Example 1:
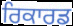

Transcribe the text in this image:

ਰਿਕਾਰਡ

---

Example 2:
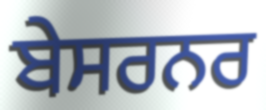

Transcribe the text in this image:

ਬੇਸਰਨਰ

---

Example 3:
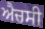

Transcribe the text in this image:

ਐਚਸੀ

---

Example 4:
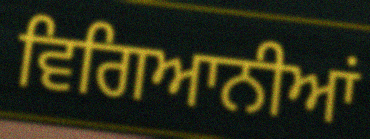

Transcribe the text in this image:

ਵਿਗਿਆਨੀਆਂ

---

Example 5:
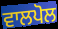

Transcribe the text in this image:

ਵਾਲਪੋਲ